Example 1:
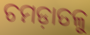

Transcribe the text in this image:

ଚମଡ଼ାତଳୁ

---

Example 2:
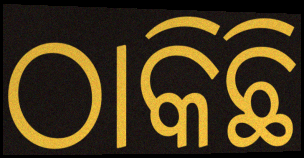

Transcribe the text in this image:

ଠାକିଛି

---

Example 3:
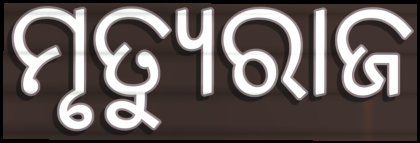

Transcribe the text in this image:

ମୃତ୍ୟୁରାଜ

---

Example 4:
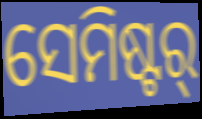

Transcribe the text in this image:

ସେମିଷ୍ଟର୍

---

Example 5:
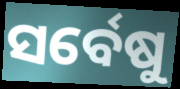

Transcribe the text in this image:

ସର୍ବେଷୁ